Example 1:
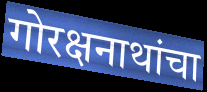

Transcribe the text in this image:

गोरक्षनाथांचा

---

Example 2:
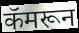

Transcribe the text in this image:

कॅमरून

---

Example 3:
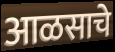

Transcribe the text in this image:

आळसाचे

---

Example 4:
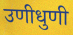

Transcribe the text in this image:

उणीधुणी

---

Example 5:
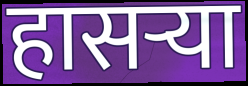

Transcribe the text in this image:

हासऱ्या